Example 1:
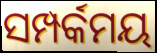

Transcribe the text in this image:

ସମ୍ପର୍କମୟ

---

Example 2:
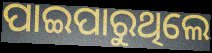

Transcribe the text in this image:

ପାଇପାରୁଥିଲେ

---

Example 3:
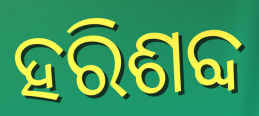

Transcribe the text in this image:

ହରିଶବ୍ଦ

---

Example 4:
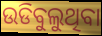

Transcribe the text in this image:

ଉଡିବୁଲୁଥିବା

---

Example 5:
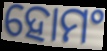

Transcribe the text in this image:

ହୋମଂ